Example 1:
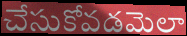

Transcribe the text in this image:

చేసుకోవడమెలా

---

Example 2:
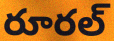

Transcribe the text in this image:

రూరల్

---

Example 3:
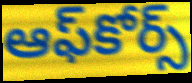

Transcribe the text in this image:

ఆఫ్‌కోర్స్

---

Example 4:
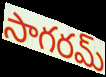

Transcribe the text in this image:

సాగరమ్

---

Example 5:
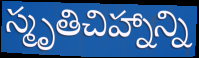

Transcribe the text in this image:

స్మృతిచిహ్నాన్ని